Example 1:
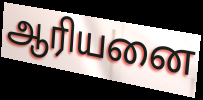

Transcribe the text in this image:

ஆரியனை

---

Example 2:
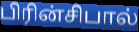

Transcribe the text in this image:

பிரின்சிபால்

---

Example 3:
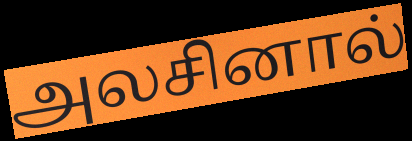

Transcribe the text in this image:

அலசினால்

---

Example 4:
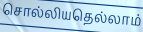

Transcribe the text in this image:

சொல்லியதெல்லாம்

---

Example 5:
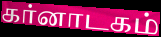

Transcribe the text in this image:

கர்னாடகம்